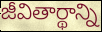
జీవితార్థాన్ని